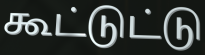
கூட்டுட்டு